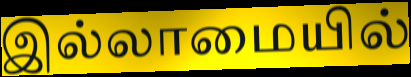
இல்லாமையில்